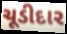
ચૂડીદાર